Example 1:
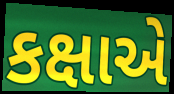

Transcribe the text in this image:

કક્ષાએ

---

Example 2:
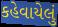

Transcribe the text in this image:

કહેવાયેલું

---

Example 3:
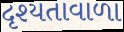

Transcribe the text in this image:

દૃશ્યતાવાળા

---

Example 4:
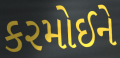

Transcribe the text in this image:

કરમોઈને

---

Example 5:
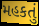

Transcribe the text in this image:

મહકતું